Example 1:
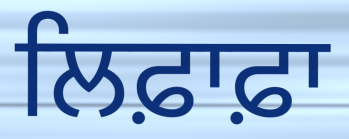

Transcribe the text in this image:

ਲਿਫ਼ਾਫ਼ਾ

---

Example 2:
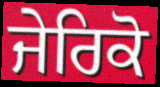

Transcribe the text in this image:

ਜੇਰਿਕੋ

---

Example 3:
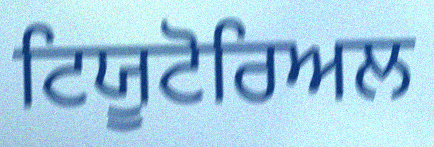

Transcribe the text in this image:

ਟਿਯੂਟੋਰਿਅਲ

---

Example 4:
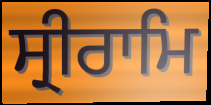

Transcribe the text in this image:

ਸ੍ਰੀਰਾਮਿ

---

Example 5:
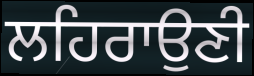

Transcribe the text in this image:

ਲਹਿਰਾਉਣੀ